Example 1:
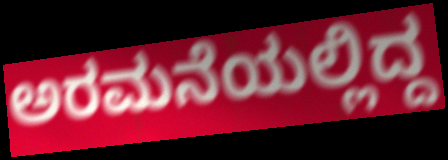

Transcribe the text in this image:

ಅರಮನೆಯಲ್ಲಿದ್ದ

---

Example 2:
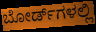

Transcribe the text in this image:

ಬೋರ್ಡ್‌ಗಳಲ್ಲಿ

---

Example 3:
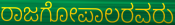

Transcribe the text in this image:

ರಾಜಗೋಪಾಲರವರು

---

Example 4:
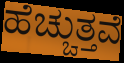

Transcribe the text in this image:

ಹೆಚ್ಚುತ್ತವೆ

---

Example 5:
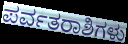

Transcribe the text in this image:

ಪರ್ವತರಾಶಿಗಳು